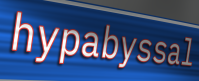
hypabyssal